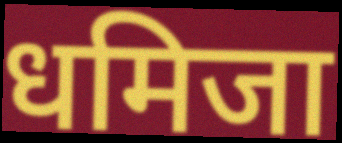
धमिजा